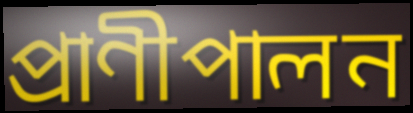
প্রাণীপালন